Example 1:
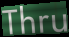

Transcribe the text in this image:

Thru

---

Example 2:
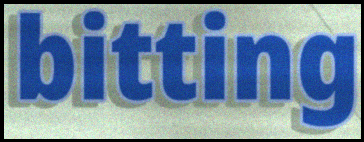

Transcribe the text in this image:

bitting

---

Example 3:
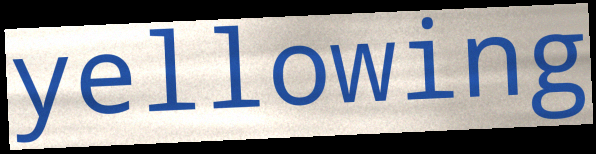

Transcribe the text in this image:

yellowing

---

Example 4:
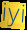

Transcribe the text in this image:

iyi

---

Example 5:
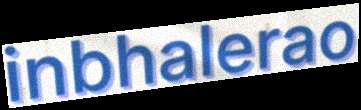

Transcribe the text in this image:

inbhalerao